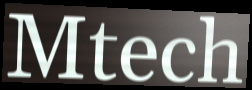
Mtech